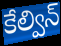
కేల్విన్